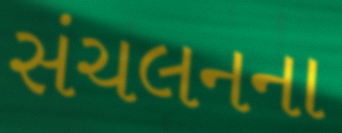
સંચલનના